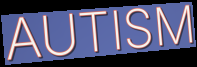
AUTISM